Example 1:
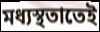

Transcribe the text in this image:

মধ্যস্থতাতেই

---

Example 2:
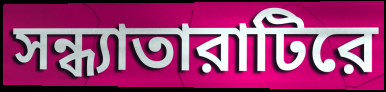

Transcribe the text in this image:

সন্ধ্যাতারাটিরে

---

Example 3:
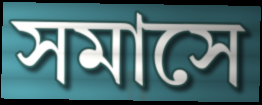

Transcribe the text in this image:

সমাসে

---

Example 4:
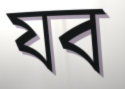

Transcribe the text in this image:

যব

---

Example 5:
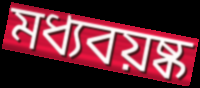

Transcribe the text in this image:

মধ্যবয়ষ্ক